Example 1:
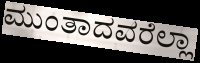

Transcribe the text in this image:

ಮುಂತಾದವರೆಲ್ಲಾ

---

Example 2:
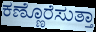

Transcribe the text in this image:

ಕಣ್ಣೊರೆಸುತ್ತಾ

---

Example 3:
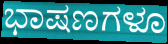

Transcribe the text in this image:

ಭಾಷಣಗಳೂ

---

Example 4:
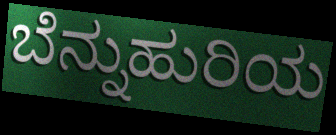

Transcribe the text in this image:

ಬೆನ್ನುಹುರಿಯ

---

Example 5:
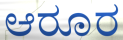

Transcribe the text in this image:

ಆರೂರ